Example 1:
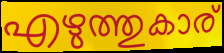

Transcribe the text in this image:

എഴുത്തുകാര്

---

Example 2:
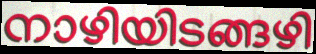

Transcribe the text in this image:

നാഴിയിടങ്ങഴി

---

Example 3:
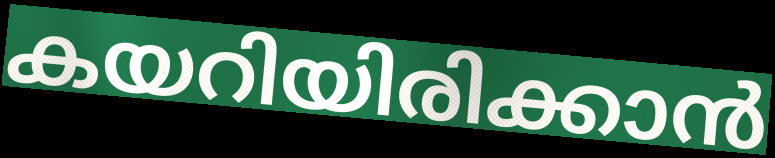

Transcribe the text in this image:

കയറിയിരിക്കാൻ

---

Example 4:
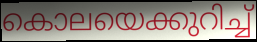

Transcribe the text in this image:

കൊലയെക്കുറിച്ച്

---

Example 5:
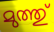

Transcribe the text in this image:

മുത്തു്